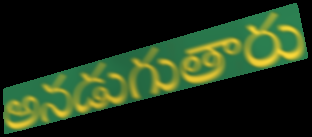
అనడుగుతారు